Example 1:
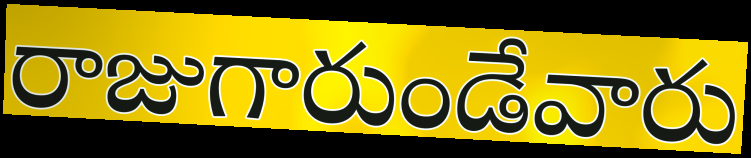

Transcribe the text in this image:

రాజుగారుండేవారు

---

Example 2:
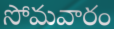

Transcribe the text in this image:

సోమవారం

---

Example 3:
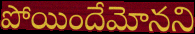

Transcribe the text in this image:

పోయిందేమోనని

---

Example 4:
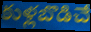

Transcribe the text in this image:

కుళ్లబొడిచే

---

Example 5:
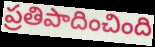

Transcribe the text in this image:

ప్రతిపాదించింది